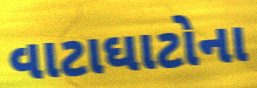
વાટાઘાટોના